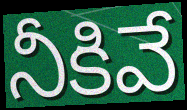
నీకివే